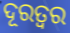
ଦୂରତ୍ଵର